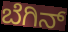
ಬೆಗಿನ್